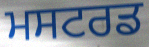
ਮਸਟਰਡ